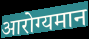
आरोग्यमान